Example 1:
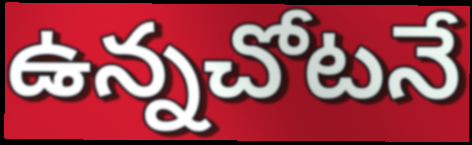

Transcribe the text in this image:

ఉన్నచోటనే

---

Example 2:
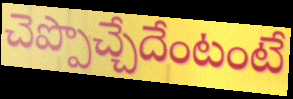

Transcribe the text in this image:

చెప్పొచ్చేదేంటంటే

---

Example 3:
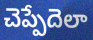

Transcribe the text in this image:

చెప్పేదెలా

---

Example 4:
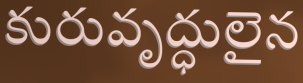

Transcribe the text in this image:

కురువృద్ధులైన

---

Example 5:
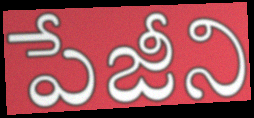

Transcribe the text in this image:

పేజీని